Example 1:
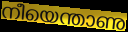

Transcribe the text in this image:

നീയെന്താണു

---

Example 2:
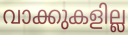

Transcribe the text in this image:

വാക്കുകളില്ല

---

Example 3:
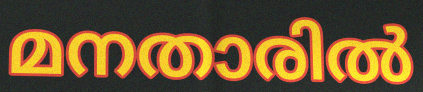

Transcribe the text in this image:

മനതാരിൽ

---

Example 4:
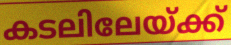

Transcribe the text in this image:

കടലിലേയ്ക്ക്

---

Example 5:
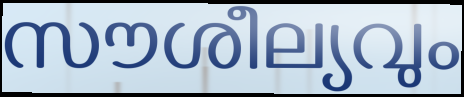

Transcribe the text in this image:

സൗശീല്യവും